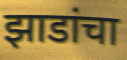
झाडांचा